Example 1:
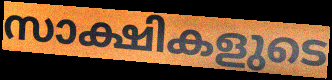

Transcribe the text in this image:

സാക്ഷികളുടെ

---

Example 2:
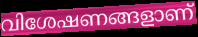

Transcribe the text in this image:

വിശേഷണങ്ങളാണ്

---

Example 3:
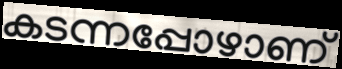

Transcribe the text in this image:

കടന്നപ്പോഴാണ്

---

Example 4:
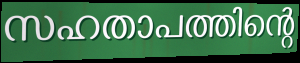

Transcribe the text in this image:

സഹതാപത്തിന്റെ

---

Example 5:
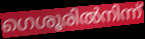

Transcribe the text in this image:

ഗെശൂരിൽനിന്ന്